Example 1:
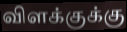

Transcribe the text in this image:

விளக்குக்கு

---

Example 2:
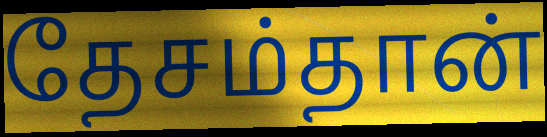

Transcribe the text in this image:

தேசம்தான்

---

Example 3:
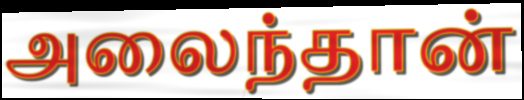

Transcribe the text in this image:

அலைந்தான்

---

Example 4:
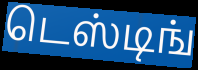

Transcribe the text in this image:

டெஸ்டிங்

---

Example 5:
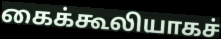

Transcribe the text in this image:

கைக்கூலியாகச்